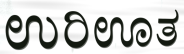
ಉರಿಊತ